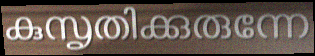
കുസൃതിക്കുരുന്നേ